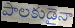
పాలకుడైనా